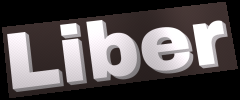
Liber